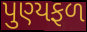
પુણ્યફળ